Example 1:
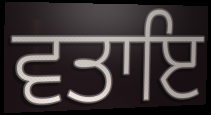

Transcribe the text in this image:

ਵਤਾਇ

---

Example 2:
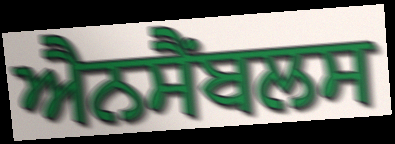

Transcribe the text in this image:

ਐਨਸੈਂਬਲਸ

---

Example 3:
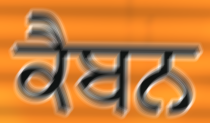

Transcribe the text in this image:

ਕੈਬਨ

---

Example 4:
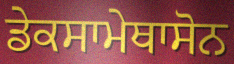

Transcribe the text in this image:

ਡੇਕਸਾਮੇਥਾਸੋਨ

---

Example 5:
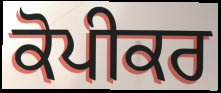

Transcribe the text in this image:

ਕੋਪੀਕਰ